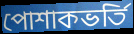
পোশাকভর্তি